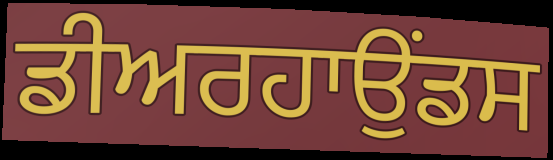
ਡੀਅਰਹਾਉਂਡਸ